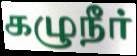
கழுநீர்